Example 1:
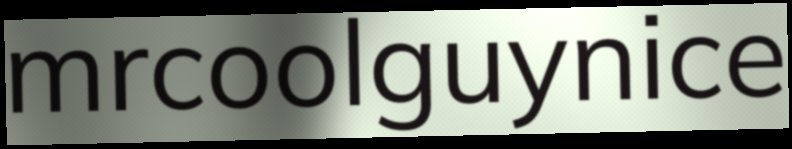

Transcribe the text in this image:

mrcoolguynice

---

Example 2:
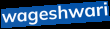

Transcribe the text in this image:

wageshwari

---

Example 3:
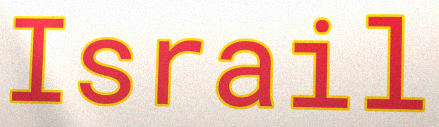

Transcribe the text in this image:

Israil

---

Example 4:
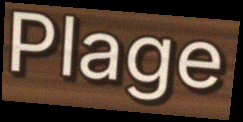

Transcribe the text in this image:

Plage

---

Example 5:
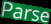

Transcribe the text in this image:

Parse